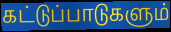
கட்டுப்பாடுகளும்